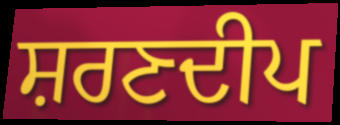
ਸ਼ਰਣਦੀਪ